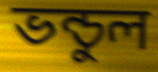
ভন্ডুল